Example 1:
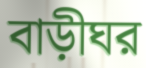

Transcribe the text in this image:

বাড়ীঘর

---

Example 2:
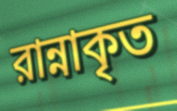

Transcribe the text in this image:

রান্নাকৃত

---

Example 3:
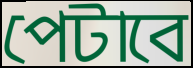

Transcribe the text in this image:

পেটাবে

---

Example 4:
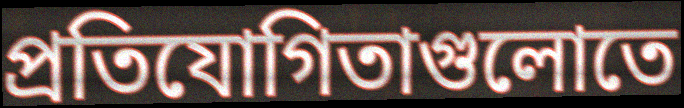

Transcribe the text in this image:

প্রতিযোগিতাগুলোতে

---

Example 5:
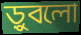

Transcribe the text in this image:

ড়ুবলো